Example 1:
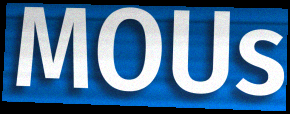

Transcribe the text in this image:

MOUs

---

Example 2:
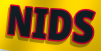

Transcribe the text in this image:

NIDS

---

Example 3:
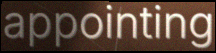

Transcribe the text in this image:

appointing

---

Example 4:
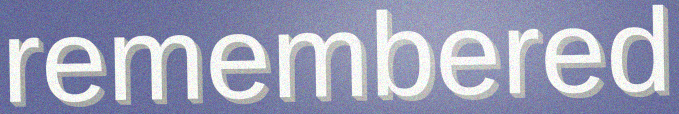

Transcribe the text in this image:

remembered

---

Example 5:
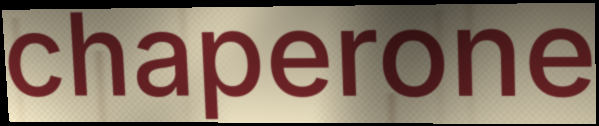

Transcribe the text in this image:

chaperone